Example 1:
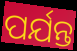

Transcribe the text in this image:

ପର୍ଯନ୍ତ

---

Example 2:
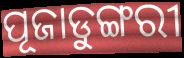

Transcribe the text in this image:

ପୂଜାଡୁଙ୍ଗରୀ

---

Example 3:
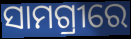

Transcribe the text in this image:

ସାମଗ୍ରୀରେ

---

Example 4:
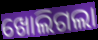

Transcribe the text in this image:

ଖୋଲିଗଲା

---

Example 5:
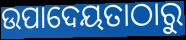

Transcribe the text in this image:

ଉପାଦେୟତାଠାରୁ